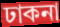
ঢাকনা